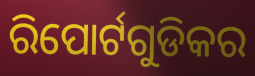
ରିପୋର୍ଟଗୁଡିକର